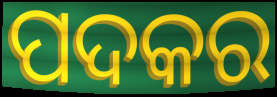
ପଦକର